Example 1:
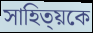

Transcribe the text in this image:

সাহিত্য়কে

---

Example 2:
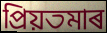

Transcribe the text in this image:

প্ৰিয়তমাৰ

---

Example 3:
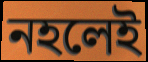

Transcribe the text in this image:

নহলেই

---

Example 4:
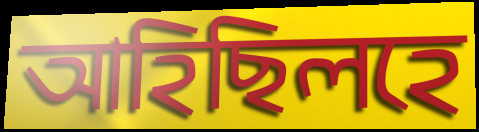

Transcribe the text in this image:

আহিছিলহে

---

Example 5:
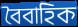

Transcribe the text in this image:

বৈবাহিক